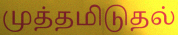
முத்தமிடுதல்